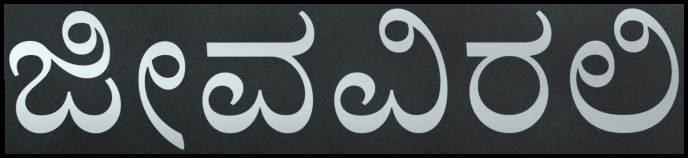
ಜೀವವಿರಲಿ